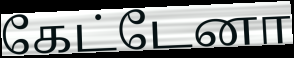
கேட்டேனா